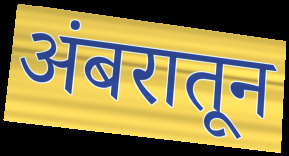
अंबरातून